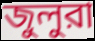
জুলুরা